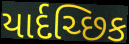
યાર્દચ્છિક